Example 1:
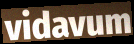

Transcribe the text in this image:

vidavum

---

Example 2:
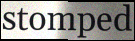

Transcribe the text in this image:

stomped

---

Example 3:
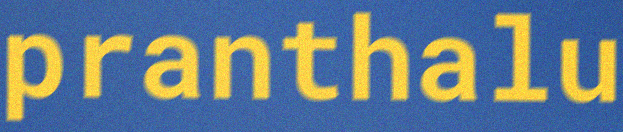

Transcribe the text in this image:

pranthalu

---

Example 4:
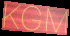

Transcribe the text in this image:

KGM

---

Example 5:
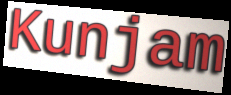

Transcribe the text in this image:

Kunjam